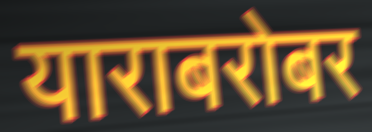
याराबरोबर